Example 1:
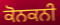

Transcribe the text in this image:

ਕੋਨਕਨੀ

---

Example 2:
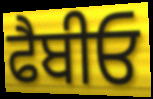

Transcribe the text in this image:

ਫੈਬੀਓ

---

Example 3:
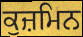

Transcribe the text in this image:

ਕੁਜ਼ਮਿਨ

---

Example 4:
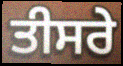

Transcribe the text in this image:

ਤੀਸਰੇ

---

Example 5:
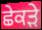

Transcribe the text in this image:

ਛੇਕੜੇ